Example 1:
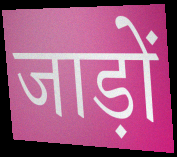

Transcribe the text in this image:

जाड़ों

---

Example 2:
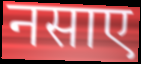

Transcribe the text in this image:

नसाए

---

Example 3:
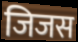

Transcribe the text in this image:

जिजस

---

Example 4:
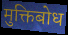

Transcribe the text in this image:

मुक्तिबोध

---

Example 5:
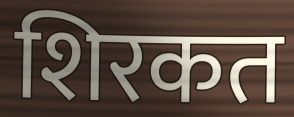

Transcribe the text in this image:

शिरकत